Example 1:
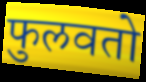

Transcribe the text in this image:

फुलवतो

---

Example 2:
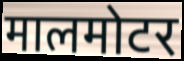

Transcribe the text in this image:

मालमोटर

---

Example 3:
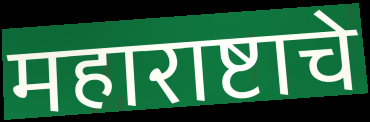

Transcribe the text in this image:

महाराष्टाचे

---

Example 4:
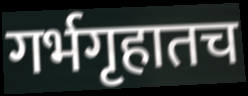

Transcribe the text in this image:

गर्भगृहातच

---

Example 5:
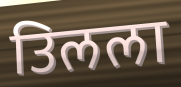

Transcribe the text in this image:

उिलला